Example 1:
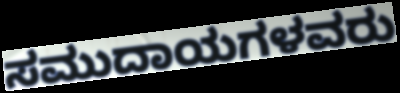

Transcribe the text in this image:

ಸಮುದಾಯಗಳವರು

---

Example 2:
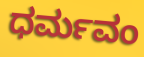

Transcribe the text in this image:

ಧರ್ಮವಂ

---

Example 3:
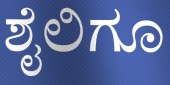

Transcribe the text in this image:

ಶೈಲಿಗೂ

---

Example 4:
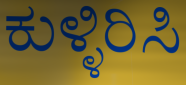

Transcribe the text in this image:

ಕುಳ್ಳಿರಿಸಿ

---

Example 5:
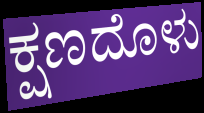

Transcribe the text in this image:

ಕ್ಷಣದೊಳು